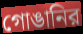
গোঙানির